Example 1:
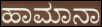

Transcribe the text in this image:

ಹಾಮಾನಾ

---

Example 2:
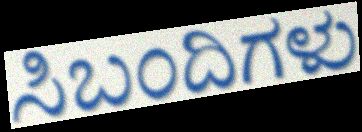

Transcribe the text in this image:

ಸಿಬಂದಿಗಳು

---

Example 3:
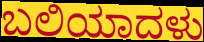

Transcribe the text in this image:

ಬಲಿಯಾದಳು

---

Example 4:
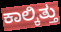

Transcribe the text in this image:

ಕಾಲ್ಕಿತ್ತು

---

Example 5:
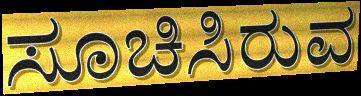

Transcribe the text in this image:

ಸೂಚಿಸಿರುವ